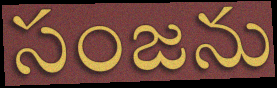
సంజను